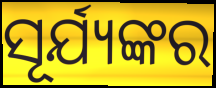
ସୂର୍ଯ୍ୟଙ୍କର